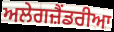
ਅਲੇਗਜ਼ੈਂਡਰੀਆ